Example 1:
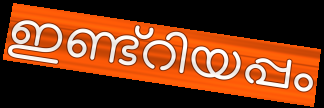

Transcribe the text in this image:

ഇണ്ട്റിയപ്പം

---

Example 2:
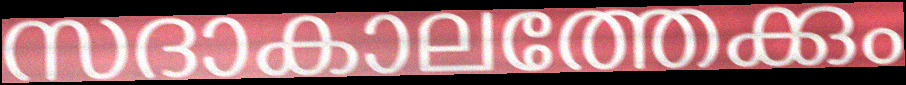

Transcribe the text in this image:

സദാകാലത്തേക്കും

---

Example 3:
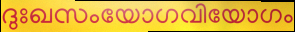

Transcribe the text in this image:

ദുഃഖസംയോഗവിയോഗം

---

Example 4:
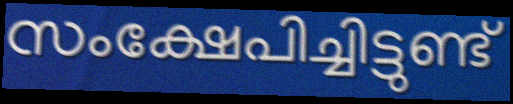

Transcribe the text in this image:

സംക്ഷേപിച്ചിട്ടുണ്ട്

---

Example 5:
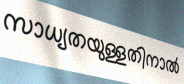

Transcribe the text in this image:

സാധ്യതയുള്ളതിനാൽ